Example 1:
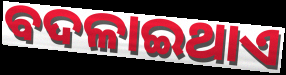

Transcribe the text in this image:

ବଦଳାଇଥାଏ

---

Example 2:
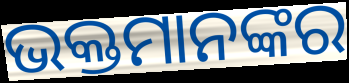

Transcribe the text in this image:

ଭକ୍ତମାନଙ୍କର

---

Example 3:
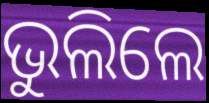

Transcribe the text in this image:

ଭୁଲିଲେ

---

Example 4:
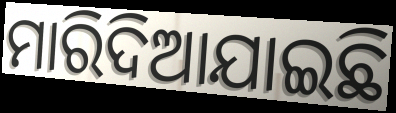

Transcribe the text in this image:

ମାରିଦିଆଯାଇଛି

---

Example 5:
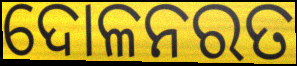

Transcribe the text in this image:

ଦୋଳନରତ